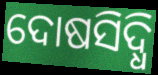
ଦୋଷସିଦ୍ଧି